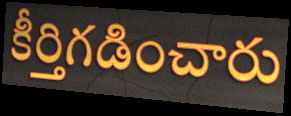
కీర్తిగడించారు